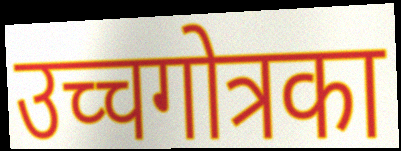
उच्चगोत्रका